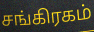
சங்கிரகம்